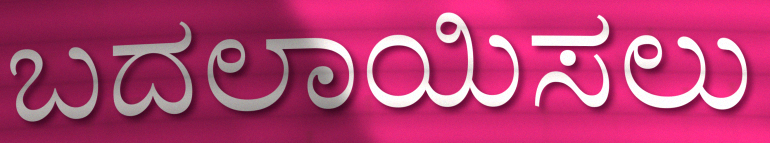
ಬದಲಾಯಿಸಲು